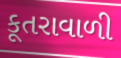
કૂતરાવાળી